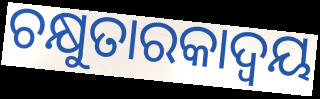
ଚକ୍ଷୁତାରକାଦ୍ଵୟ